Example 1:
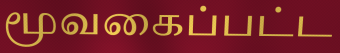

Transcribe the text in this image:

மூவகைப்பட்ட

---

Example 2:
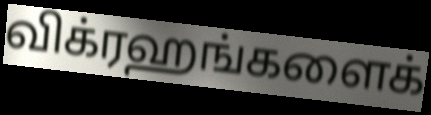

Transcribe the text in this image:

விக்ரஹங்களைக்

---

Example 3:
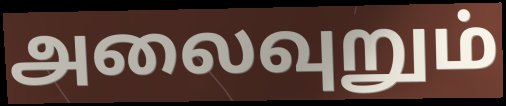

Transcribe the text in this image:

அலைவுறும்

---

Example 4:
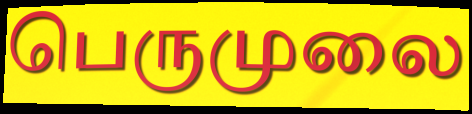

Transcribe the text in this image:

பெருமுலை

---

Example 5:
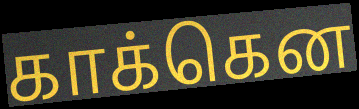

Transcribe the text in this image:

காக்கென